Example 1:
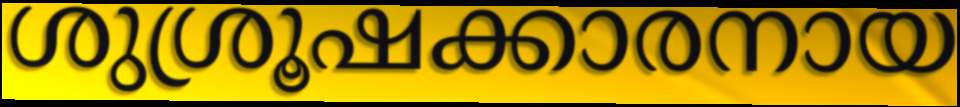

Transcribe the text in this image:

ശുശ്രൂഷക്കാരനായ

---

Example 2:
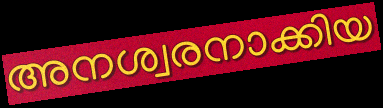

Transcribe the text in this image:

അനശ്വരനാക്കിയ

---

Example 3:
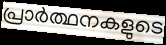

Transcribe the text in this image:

പ്രാർത്ഥനകളുടെ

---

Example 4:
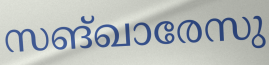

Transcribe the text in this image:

സങ്ഖാരേസു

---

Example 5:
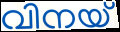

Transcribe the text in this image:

വിനയ്